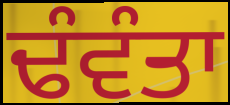
ਢੰਵੰਤਾ